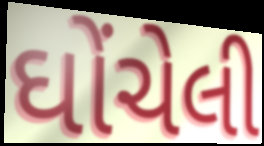
ઘોંચેલી